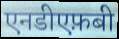
एनडीएफ़बी